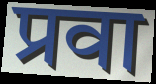
प्रवा